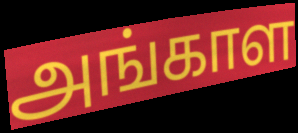
அங்காள